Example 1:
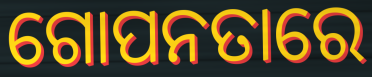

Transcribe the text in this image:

ଗୋପନତାରେ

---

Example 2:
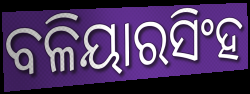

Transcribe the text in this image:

ବଳିୟାରସିଂହ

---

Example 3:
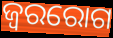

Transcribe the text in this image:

ଜ୍ୱରରୋଗ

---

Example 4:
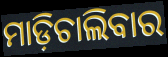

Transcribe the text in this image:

ମାଡ଼ିଚାଲିବାର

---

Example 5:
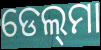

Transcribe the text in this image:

ଡେଲ୍‍ମା